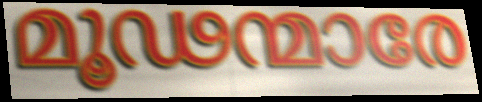
മൂഢന്മാരേ